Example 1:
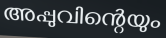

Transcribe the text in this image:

അപ്പുവിന്റെയും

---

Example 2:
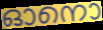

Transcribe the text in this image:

ഓനൊ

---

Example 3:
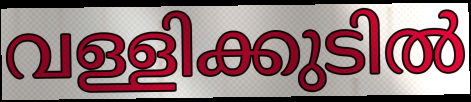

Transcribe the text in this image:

വള്ളിക്കുടിൽ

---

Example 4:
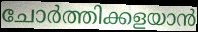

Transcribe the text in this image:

ചോർത്തിക്കളയാൻ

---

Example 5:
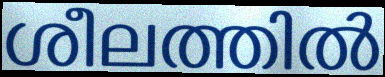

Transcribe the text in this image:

ശീലത്തിൽ